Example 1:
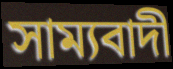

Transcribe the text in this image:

সাম্যবাদী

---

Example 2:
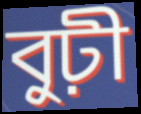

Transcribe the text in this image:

বুঢ়ী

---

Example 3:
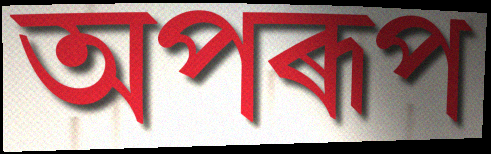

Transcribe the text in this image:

অপৰূপ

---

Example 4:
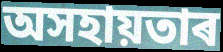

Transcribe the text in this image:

অসহায়তাৰ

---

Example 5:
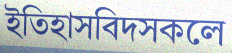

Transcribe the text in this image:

ইতিহাসবিদসকলে